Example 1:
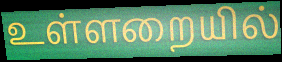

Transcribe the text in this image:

உள்ளறையில்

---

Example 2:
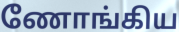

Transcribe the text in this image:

ணோங்கிய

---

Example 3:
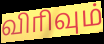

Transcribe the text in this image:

விரிவும்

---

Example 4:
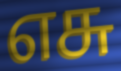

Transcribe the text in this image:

எசு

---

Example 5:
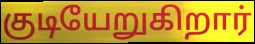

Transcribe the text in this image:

குடியேறுகிறார்